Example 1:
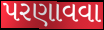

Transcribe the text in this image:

પરણાવવા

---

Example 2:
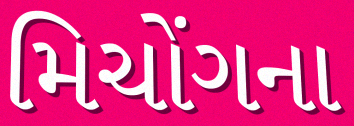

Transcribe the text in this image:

મિચોંગના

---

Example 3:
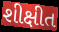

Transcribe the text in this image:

શીક્ષીત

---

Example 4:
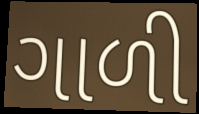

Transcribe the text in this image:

ગાળી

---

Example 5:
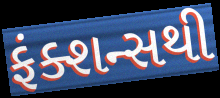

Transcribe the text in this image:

ફંક્શન્સથી